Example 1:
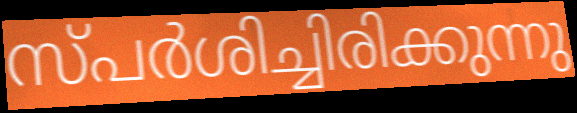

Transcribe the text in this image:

സ്പർശിച്ചിരിക്കുന്നു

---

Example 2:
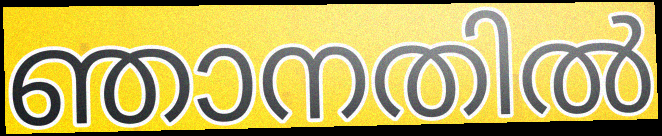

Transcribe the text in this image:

ഞാനതിൽ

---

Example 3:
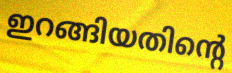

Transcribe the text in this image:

ഇറങ്ങിയതിന്റെ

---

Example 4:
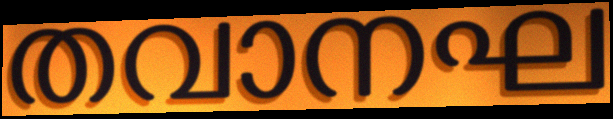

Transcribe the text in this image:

തവാനഘ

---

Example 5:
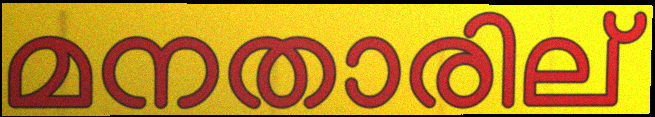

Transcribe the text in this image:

മനതാരില്